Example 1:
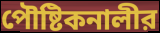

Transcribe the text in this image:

পৌষ্টিকনালীর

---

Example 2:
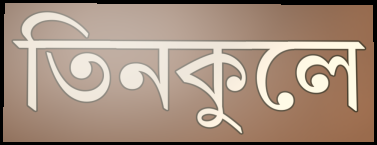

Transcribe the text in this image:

তিনকুলে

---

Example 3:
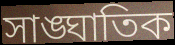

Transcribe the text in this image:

সাঙ্ঘাতিক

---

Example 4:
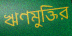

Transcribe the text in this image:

ঋণমুক্তির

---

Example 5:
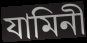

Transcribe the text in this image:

যামিনী